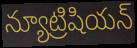
న్యూట్రిషియన్